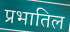
प्रभातिल